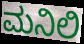
ಮನಿಲಿ